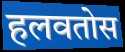
हलवतोस